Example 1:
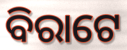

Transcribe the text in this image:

ବିରାଟେ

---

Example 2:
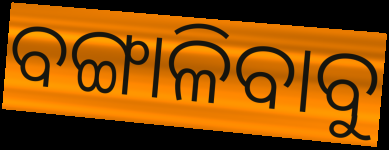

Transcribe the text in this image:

ବଙ୍ଗାଳିବାବୁ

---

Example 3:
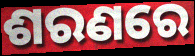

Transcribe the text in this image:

ଶରଣରେ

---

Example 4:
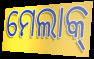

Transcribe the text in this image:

ମେଲାକ୍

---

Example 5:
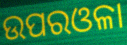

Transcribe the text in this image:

ଉପରଓଳା